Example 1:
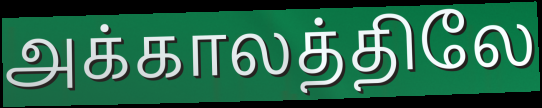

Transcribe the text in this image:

அக்காலத்திலே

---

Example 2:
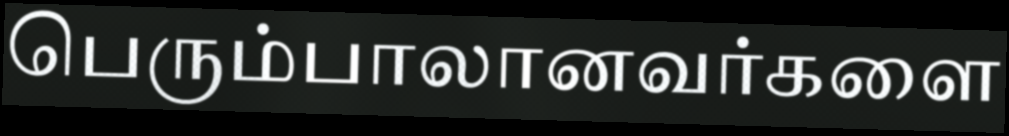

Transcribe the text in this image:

பெரும்பாலானவர்களை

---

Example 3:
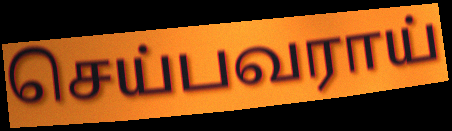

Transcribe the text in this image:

செய்பவராய்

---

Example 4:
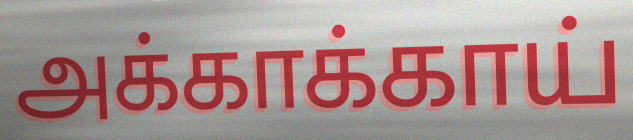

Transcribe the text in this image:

அக்காக்காய்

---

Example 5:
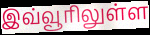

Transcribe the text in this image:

இவ்வூரிலுள்ள